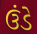
ઉંડે